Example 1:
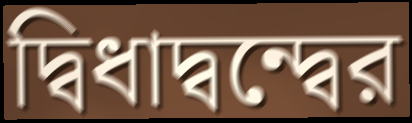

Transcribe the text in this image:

দ্বিধাদ্বন্দ্বের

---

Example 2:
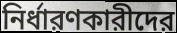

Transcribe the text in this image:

নির্ধারণকারীদের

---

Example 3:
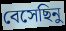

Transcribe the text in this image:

বেসেছিনু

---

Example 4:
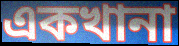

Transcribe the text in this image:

একখানা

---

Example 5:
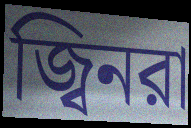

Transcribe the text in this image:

জ্বিনরা